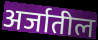
अर्जातील